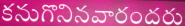
కనుగొనినవారందరు